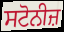
ਸਟੋਨੀਜ਼